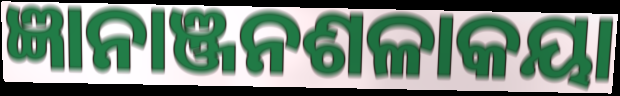
ଜ୍ଞାନାଞ୍ଜନଶଳାକୟା